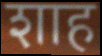
शाह